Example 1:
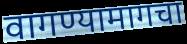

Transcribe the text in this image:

वागण्यामागचा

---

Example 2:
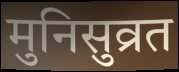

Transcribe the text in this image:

मुनिसुव्रत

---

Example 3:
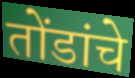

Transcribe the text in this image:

तोंडांचे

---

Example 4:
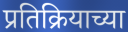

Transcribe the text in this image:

प्रतिक्रियाच्या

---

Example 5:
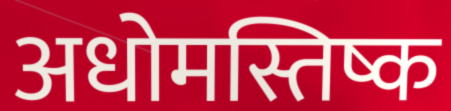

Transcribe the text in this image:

अधोमस्तिष्क